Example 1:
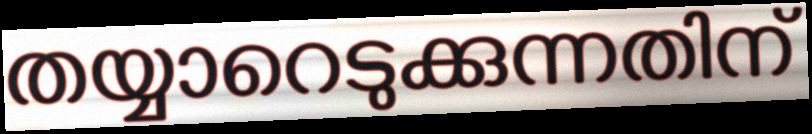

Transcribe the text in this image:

തയ്യാറെടുക്കുന്നതിന്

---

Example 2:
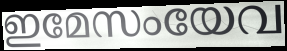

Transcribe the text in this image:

ഇമേസംയേവ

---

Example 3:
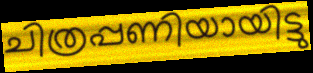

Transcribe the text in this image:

ചിത്രപ്പണിയായിട്ടു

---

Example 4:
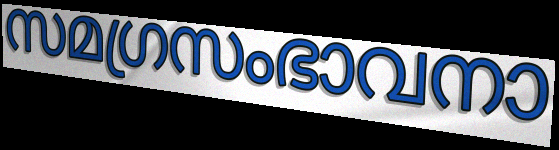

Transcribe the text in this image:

സമഗ്രസംഭാവനാ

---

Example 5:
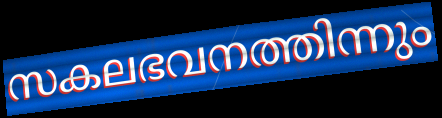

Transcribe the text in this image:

സകലഭവനത്തിന്നും